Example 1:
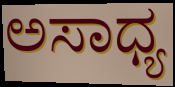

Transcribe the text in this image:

ಅಸಾಧ್ಯ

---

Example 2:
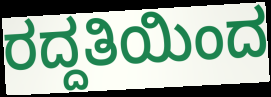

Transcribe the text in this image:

ರದ್ದತಿಯಿಂದ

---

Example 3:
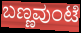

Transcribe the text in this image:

ಬಣ್ಣವುಂಟೆ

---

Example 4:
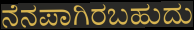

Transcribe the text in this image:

ನೆನಪಾಗಿರಬಹುದು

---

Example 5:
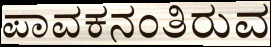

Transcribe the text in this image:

ಪಾವಕನಂತಿರುವ